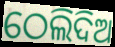
ଠେଲିଦିଅ